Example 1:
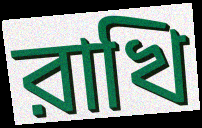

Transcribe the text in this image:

রাখি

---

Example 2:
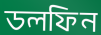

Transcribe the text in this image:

ডলফিন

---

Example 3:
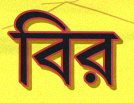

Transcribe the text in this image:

বির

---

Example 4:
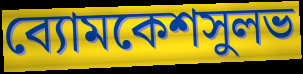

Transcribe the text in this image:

ব্যোমকেশসুলভ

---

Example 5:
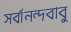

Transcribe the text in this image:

সর্বানন্দবাবু